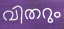
വിതറും